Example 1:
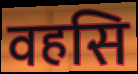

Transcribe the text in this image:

वहसि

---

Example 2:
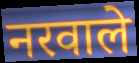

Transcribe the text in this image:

नरवाले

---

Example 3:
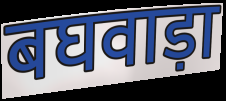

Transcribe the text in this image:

बघवाड़ा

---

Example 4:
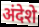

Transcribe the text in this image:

अंदेशे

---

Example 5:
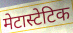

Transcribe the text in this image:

मेटास्टेटिक